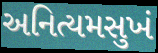
અનિત્યમસુખં